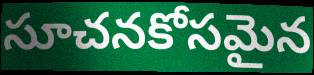
సూచనకోసమైన